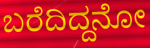
ಬರೆದಿದ್ದನೋ